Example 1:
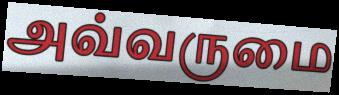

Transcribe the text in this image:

அவ்வருமை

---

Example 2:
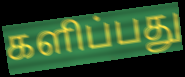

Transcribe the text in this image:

களிப்பது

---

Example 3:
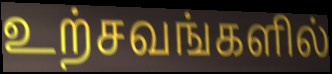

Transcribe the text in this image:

உற்சவங்களில்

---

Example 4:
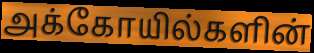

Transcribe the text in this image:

அக்கோயில்களின்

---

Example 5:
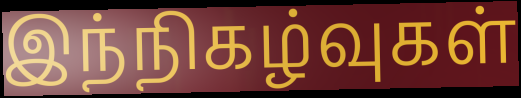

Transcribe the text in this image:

இந்நிகழ்வுகள்